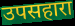
उपसहारा